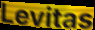
Levitas